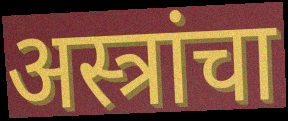
अस्त्रांचा